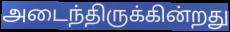
அடைந்திருக்கின்றது